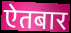
ऐतबार